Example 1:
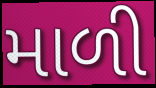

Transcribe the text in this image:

માળી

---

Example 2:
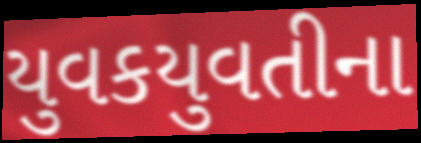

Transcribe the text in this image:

યુવકયુવતીના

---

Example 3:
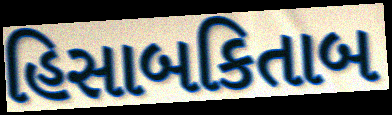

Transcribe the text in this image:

હિસાબકિતાબ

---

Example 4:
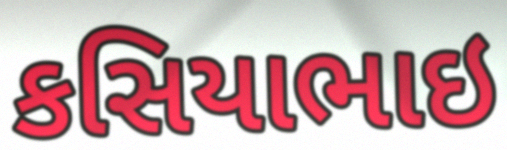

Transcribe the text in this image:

કસિયાભાઇ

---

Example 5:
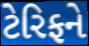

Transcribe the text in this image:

ટેરિફને